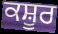
ਕਸ਼ੂਰ